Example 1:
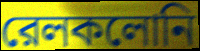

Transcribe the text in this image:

রেলকলোনি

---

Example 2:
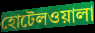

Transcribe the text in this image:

হোটেলওয়ালা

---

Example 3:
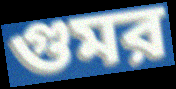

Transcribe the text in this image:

গুমর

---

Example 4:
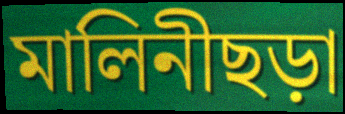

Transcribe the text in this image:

মালিনীছড়া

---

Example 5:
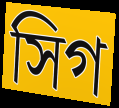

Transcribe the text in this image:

সিগ